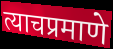
त्याचप्रमाणे